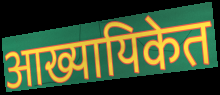
आख्यायिकेत